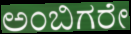
ಅಂಬಿಗರೇ